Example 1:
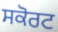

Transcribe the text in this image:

ਸਕੋਰਟ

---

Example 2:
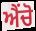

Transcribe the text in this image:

ਐਂਚੋ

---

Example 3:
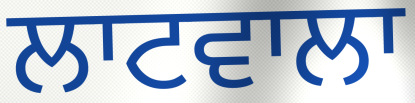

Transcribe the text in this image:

ਲਾਟਵਾਲਾ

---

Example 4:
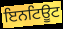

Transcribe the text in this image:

ਇਨਟਿਊਟ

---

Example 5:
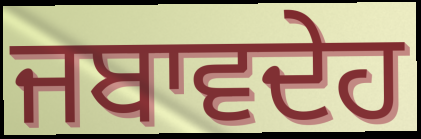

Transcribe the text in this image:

ਜਬਾਵਦੇਹ